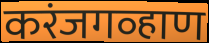
करंजगव्हाण